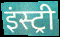
इंस्ट्री